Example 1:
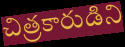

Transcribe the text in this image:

చిత్రకారుడిని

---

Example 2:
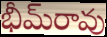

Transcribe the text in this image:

భీమ్‌రావు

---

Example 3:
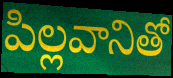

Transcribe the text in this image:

పిల్లవానితో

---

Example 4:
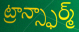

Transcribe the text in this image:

ట్రాన్స్ఫార్మ్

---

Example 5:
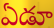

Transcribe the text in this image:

ఏడూ